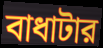
বাধাটার